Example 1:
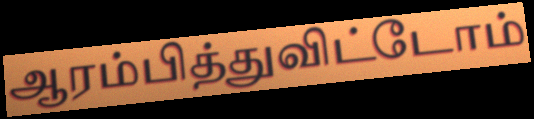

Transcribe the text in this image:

ஆரம்பித்துவிட்டோம்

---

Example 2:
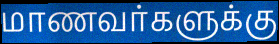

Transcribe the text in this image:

மாணவர்களுக்கு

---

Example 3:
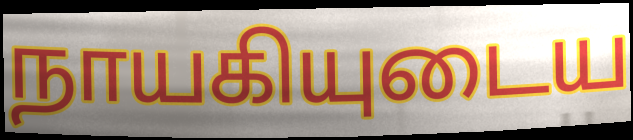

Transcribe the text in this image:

நாயகியுடைய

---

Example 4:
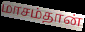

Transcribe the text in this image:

மாசம்தான்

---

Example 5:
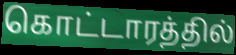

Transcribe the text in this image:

கொட்டாரத்தில்